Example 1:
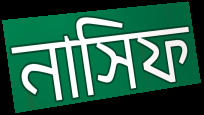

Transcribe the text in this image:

নাসিফ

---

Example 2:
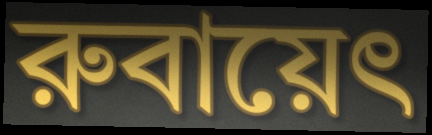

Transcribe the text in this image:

রুবায়েৎ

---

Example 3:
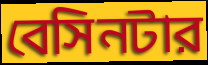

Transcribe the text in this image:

বেসিনটার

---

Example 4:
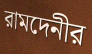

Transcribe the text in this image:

রামদেনীর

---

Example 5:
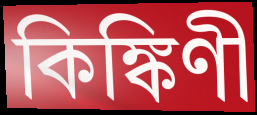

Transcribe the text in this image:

কিঙ্কিণী